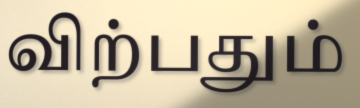
விற்பதும்